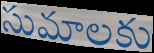
సుమాలకు